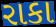
રાકા